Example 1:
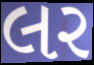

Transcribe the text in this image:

લર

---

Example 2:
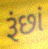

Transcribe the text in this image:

રૂંછાં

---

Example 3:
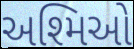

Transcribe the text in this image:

અશ્મિઓ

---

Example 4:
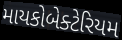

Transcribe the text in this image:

માયકોબેક્ટેરિયમ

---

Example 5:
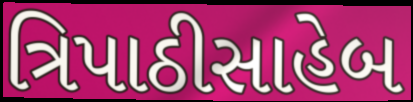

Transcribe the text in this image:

ત્રિપાઠીસાહેબ